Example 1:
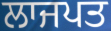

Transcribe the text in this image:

ਲਾਜਪਤ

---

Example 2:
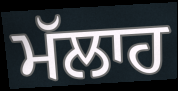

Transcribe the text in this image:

ਮੱਲਾਹ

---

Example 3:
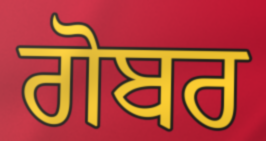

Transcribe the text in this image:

ਗੋਬਰ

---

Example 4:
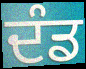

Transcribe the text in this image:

ਦੰਡ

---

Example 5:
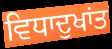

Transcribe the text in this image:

ਵਿਧਾਦੁਖਾਂਤ